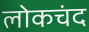
लोकचंद